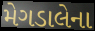
મેગડાલેના